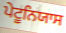
ਪੇਟੂਨਿਯਾਸ